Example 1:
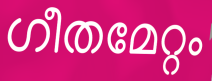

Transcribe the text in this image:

ഗീതമേറ്റം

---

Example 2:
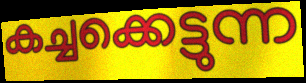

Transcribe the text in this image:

കച്ചക്കെട്ടുന്ന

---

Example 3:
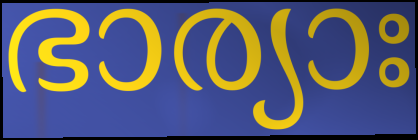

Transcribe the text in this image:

ഭാര്യാഃ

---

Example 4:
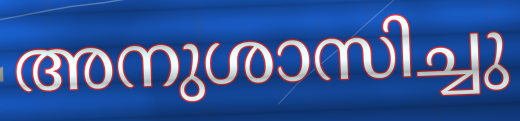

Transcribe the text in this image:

അനുശാസിച്ചു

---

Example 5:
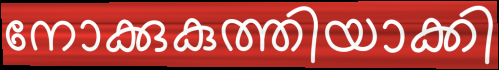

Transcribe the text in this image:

നോക്കുകുത്തിയാക്കി